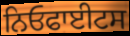
ਨਿਓਫਾਈਟਸ